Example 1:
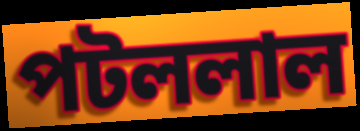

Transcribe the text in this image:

পটললাল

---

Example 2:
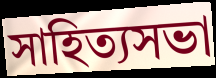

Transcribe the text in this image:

সাহিত্যসভা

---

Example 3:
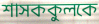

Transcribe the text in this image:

শাসককুলকে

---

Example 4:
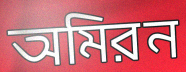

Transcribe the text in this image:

অমিরন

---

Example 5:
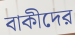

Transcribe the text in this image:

বাকীদের